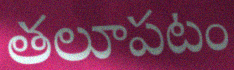
తలూపటం